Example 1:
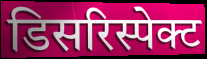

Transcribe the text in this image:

डिसरिस्पेक्ट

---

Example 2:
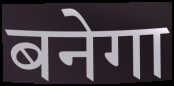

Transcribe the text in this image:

बनेगा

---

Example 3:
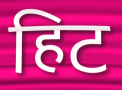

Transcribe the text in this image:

हिट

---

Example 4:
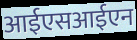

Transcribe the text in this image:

आईएसआईएन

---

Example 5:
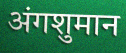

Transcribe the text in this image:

अंगशुमान